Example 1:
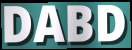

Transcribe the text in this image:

DABD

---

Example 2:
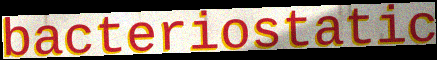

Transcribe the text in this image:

bacteriostatic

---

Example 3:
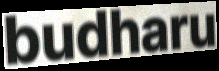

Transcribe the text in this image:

budharu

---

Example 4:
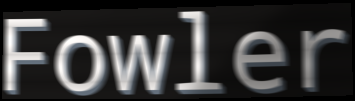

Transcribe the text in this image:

Fowler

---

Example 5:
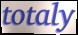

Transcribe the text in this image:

totaly